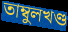
তাম্বুলখণ্ড